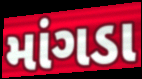
માંગડા